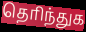
தெரிந்துக